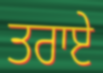
ਤਰਾਏ